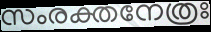
സംരക്തനേത്രഃ